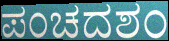
ಪಂಚದಶಂ